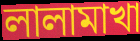
লালামাখা